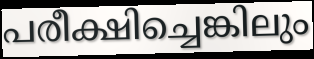
പരീക്ഷിച്ചെങ്കിലും